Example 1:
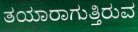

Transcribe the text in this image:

ತಯಾರಾಗುತ್ತಿರುವ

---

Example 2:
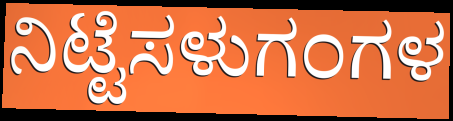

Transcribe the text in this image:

ನಿಟ್ಟೆಸಳುಗಂಗಳ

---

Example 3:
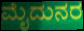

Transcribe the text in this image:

ಮೈದುನರ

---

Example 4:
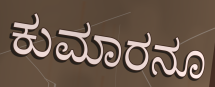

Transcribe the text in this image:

ಕುಮಾರನೂ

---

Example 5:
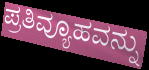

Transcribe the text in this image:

ಪ್ರತಿವ್ಯೂಹವನ್ನು